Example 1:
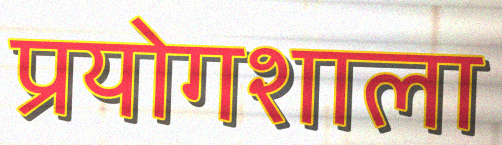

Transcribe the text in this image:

प्रयोगशाला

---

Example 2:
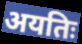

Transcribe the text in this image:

अयतिः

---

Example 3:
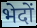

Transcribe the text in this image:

भेदों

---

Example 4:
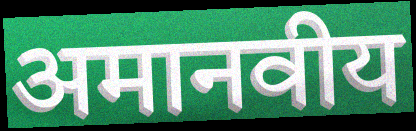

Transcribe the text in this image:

अमानवीय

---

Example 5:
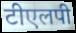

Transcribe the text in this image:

टीएलपी